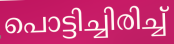
പൊട്ടിച്ചിരിച്ച്